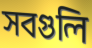
সবগুলি